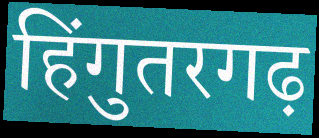
हिंगुतरगढ़